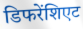
डिफरेंशिएट